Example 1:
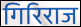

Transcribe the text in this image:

गिरिराज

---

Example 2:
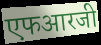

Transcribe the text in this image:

एफआरजी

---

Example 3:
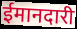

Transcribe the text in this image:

ईमानदारी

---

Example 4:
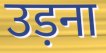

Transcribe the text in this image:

उड़ना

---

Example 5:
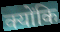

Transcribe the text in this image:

क्योंकि